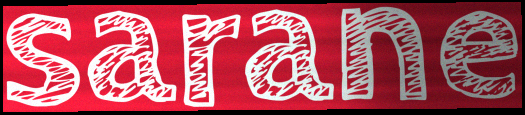
sarane